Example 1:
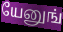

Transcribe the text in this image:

யேனுங்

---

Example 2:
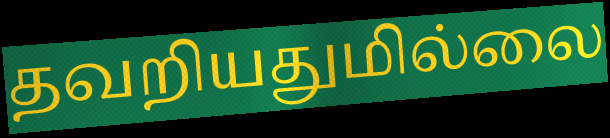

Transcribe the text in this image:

தவறியதுமில்லை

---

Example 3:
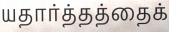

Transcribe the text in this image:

யதார்த்தத்தைக்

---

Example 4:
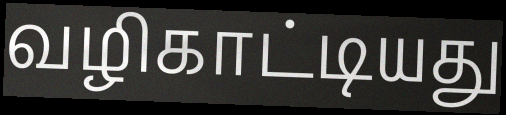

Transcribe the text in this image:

வழிகாட்டியது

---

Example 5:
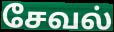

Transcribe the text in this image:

சேவல்